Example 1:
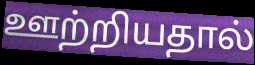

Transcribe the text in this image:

ஊற்றியதால்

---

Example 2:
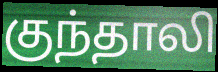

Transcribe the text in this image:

குந்தாலி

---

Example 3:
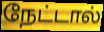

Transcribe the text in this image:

நேட்டால்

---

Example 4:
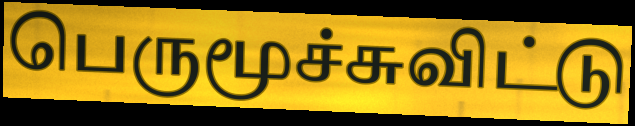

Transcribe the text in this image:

பெருமூச்சுவிட்டு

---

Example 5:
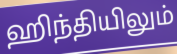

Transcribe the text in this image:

ஹிந்தியிலும்